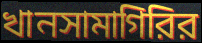
খানসামাগিরির